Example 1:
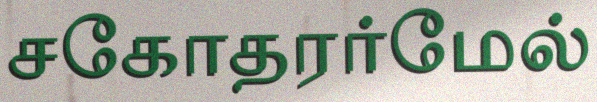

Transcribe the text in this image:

சகோதரர்மேல்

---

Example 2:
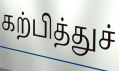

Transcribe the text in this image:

கற்பித்துச்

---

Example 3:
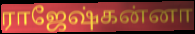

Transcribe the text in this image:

ராஜேஷ்கன்னா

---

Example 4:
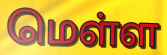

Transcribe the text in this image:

மெள்ள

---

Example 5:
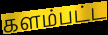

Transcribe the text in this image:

களம்பட்ட